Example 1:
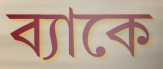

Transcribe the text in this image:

ব্যাকে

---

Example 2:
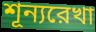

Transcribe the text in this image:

শূন্যরেখা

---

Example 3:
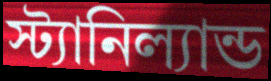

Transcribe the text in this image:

স্ট্যানিল্যান্ড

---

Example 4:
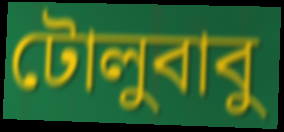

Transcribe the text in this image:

টোলুবাবু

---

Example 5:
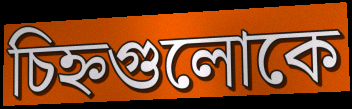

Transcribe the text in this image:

চিহ্নগুলোকে